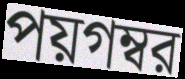
পয়গম্বর